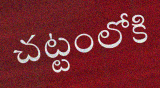
చట్టంలోకి